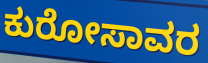
ಕುರೋಸಾವರ